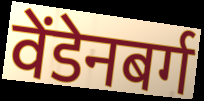
वेंडेनबर्ग